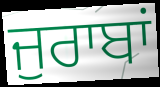
ਜੁਰਾਬਾਂ